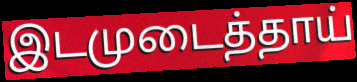
இடமுடைத்தாய்